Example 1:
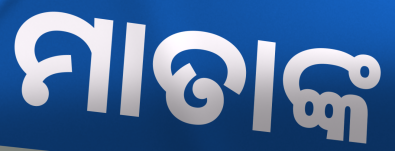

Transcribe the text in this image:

ମାତାଙ୍କ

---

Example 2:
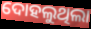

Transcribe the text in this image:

ଦୋହଲୁଥିଲା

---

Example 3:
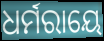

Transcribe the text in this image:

ଧର୍ମରାୟେ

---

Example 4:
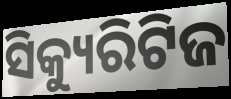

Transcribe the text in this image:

ସିକ୍ୟୁରିଟିଜ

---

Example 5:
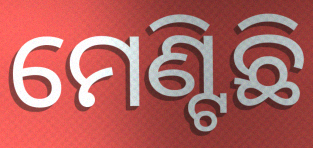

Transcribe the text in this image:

ମେଣ୍ଟିଛି